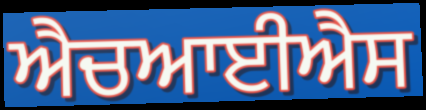
ਐਚਆਈਐਸ